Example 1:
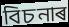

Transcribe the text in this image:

বিচনাৰ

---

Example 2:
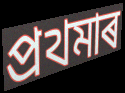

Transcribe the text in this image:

প্ৰথমাৰ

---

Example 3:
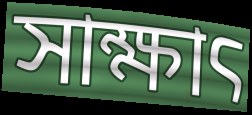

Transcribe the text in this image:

সাক্ষাৎ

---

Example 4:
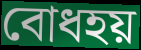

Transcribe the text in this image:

বোধহয়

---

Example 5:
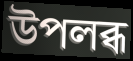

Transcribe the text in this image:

উপলব্ধ